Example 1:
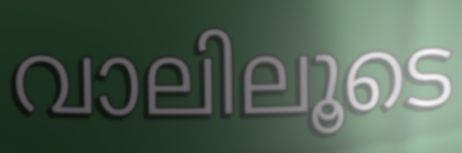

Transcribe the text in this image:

വാലിലൂടെ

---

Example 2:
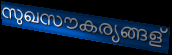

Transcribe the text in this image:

സുഖസൗകര്യങ്ങള്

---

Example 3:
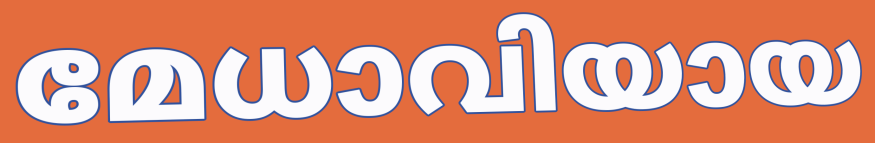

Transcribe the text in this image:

മേധാവിയായ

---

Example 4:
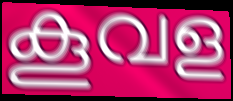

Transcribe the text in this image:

കൂവള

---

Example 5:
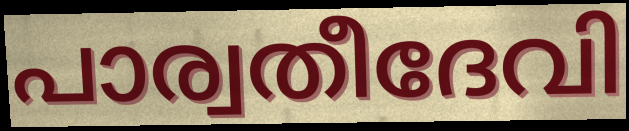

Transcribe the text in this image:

പാര്വതീദേവി